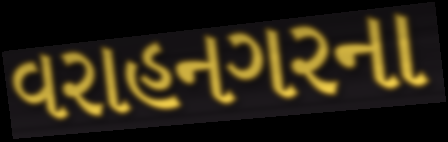
વરાહનગરના